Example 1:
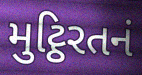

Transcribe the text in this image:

મુટ્ઠિરતનં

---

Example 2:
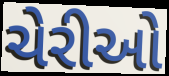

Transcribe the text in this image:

ચેરીઓ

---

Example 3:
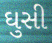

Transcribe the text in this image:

ઘુસી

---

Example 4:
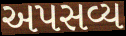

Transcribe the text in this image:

અપસવ્ય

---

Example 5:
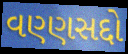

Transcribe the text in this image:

વણ્ણસદ્દો